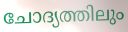
ചോദ്യത്തിലും